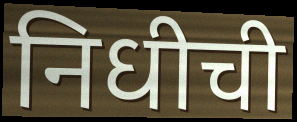
निधीची